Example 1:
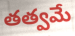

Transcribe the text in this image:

తత్వమే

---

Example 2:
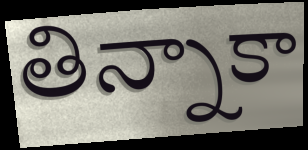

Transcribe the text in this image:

తిన్నాకా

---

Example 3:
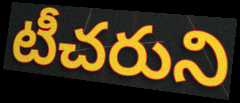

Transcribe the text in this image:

టీచరుని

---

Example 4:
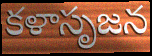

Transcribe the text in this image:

కళాసృజన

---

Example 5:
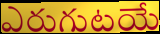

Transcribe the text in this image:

ఎరుగుటయే